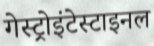
गेस्ट्रोइंटेस्टाइनल